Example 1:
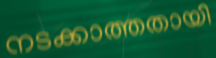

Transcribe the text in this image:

നടക്കാത്തതായി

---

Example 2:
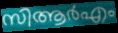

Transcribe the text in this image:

സിആർഎം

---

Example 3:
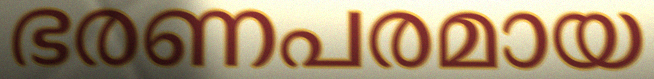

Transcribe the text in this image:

ഭരണപരമായ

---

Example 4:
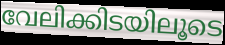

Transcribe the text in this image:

വേലിക്കിടയിലൂടെ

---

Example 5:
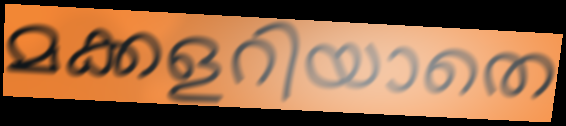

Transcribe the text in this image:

മക്കളറിയാതെ